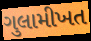
ગુલામીખત